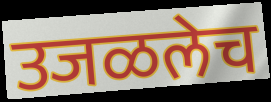
उजळलेच